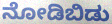
ನೋಡಿಬಿಡು